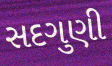
સદગુણી